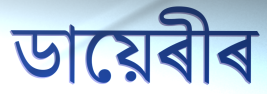
ডায়েৰীৰ